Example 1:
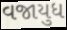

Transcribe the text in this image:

વજાયુધ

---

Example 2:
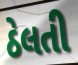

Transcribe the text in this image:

ઠેલતી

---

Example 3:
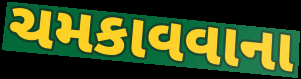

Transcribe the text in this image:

ચમકાવવાના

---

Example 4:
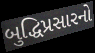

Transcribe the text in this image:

બુદ્ધિપ્રસારનો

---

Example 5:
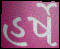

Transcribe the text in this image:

હર્ષે